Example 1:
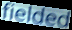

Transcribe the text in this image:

fielded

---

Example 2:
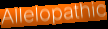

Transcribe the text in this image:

Allelopathic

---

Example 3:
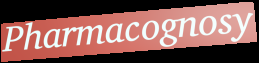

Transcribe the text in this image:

Pharmacognosy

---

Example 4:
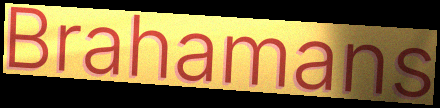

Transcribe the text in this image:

Brahamans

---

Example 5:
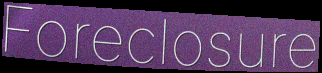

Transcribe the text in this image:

Foreclosure